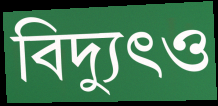
বিদ্যুৎও